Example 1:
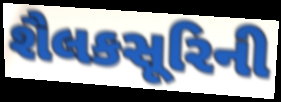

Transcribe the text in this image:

શૈલકસૂરિની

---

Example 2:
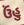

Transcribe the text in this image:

ઉંહુ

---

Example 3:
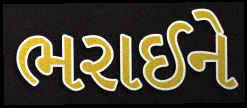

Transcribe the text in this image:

ભરાઈને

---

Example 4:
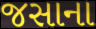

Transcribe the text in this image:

જસાના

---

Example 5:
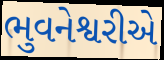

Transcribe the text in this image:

ભુવનેશ્વરીએ